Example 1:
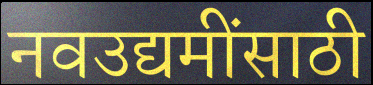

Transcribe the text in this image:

नवउद्यमींसाठी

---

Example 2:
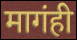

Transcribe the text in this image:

मागंही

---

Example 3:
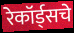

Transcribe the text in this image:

रेकॉर्ड्सचे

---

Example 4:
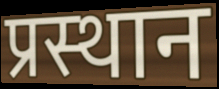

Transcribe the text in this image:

प्रस्थान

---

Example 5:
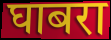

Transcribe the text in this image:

घाबरा